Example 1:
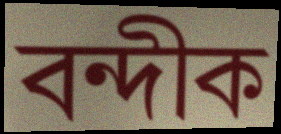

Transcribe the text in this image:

বন্দীক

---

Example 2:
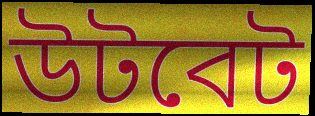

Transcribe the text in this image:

উটবেট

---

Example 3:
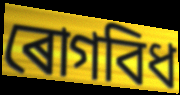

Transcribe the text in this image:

ৰোগবিধ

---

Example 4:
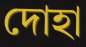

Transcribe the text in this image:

দোহা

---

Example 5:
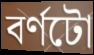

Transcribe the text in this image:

বৰ্ণটো